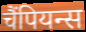
चैंपियन्स